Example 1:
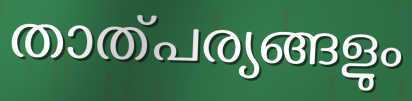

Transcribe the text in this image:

താത്പര്യങ്ങളും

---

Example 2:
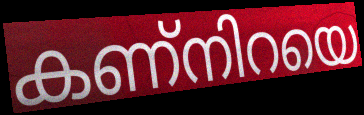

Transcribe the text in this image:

കണ്നിറയെ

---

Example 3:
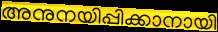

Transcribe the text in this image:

അനുനയിപ്പിക്കാനായി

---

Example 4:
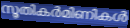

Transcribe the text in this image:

സൂതികർമിണികൾ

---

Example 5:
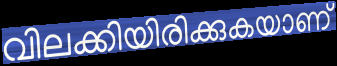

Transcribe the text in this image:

വിലക്കിയിരിക്കുകയാണ്